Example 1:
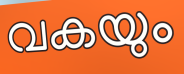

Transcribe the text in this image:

വകയും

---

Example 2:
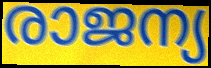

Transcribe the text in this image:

രാജന്യ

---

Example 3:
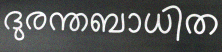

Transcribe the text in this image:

ദുരന്തബാധിത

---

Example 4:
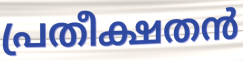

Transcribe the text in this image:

പ്രതീക്ഷതൻ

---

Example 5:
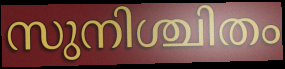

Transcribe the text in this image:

സുനിശ്ചിതം